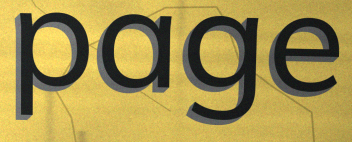
page